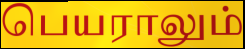
பெயராலும்